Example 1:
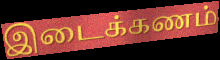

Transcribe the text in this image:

இடைக்கணம்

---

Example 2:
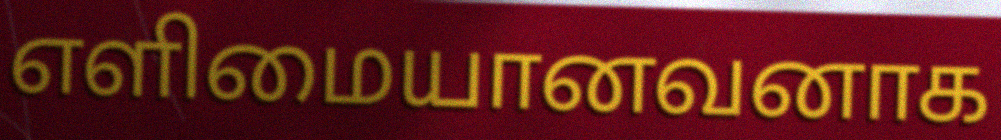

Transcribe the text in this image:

எளிமையானவனாக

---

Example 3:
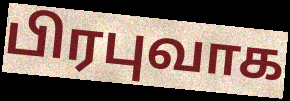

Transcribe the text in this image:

பிரபுவாக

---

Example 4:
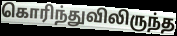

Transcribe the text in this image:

கொரிந்துவிலிருந்த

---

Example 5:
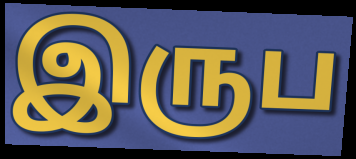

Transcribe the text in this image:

இருப